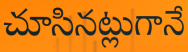
చూసినట్లుగానే